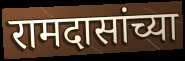
रामदासांच्या